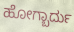
ಹೋಗ್ಬಾರ್ದು